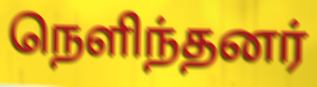
நெளிந்தனர்